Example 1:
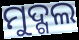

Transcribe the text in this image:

ମୁଦ୍ଗଲ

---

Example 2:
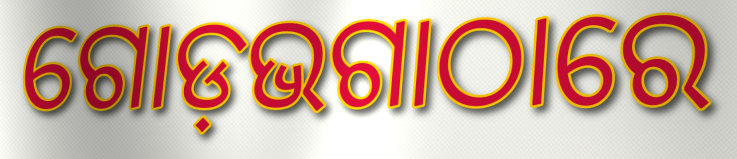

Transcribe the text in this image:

ଗୋଡ଼ଭଗାଠାରେ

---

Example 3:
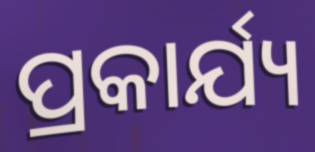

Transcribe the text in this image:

ପ୍ରକାର୍ଯ୍ୟ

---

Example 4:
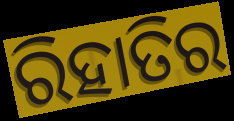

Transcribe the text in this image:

ରିହାତିର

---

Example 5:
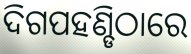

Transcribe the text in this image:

ଦିଗପହଣ୍ଡିଠାରେ